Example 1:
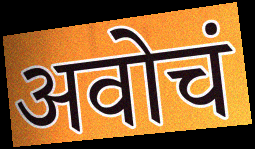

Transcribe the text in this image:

अवोचं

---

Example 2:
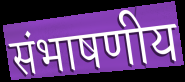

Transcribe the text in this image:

संभाषणीय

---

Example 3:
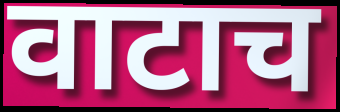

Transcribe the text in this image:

वाटाच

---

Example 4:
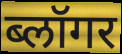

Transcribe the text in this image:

ब्लॉगर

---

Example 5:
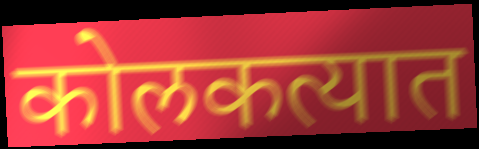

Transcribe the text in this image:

कोलकत्यात